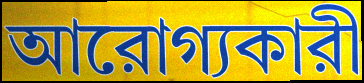
আরোগ্যকারী